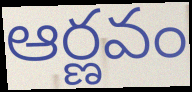
ఆర్ణవం